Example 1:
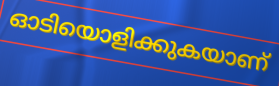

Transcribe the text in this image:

ഓടിയൊളിക്കുകയാണ്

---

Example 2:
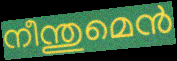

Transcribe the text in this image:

നീന്തുമെൻ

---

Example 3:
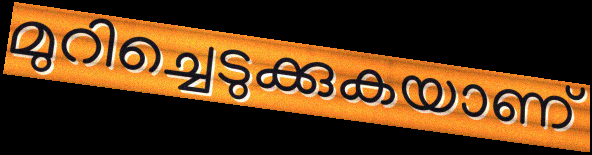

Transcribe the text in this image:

മുറിച്ചെടുക്കുകയാണ്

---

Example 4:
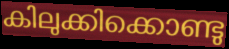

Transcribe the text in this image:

കിലുക്കിക്കൊണ്ടു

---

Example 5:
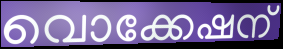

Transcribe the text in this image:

വൊക്കേഷന്